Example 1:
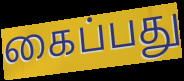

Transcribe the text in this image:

கைப்பது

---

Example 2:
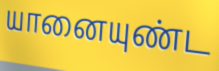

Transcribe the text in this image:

யானையுண்ட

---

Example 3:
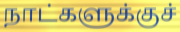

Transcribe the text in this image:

நாட்களுக்குச்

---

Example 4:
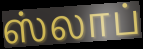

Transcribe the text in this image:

ஸ்லாப்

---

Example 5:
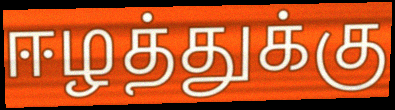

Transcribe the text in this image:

ஈழத்துக்கு